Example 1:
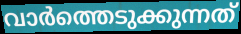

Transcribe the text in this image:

വാർത്തെടുക്കുന്നത്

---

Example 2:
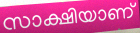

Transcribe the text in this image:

സാക്ഷിയാണ്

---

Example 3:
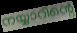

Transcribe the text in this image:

നയ്യാറിന്റെ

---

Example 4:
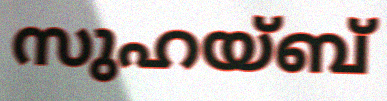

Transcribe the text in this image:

സുഹയ്ബ്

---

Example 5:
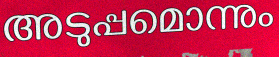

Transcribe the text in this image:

അടുപ്പമൊന്നും